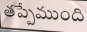
తప్పేముంది